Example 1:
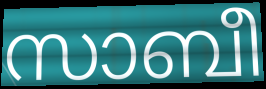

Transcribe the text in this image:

സാബീ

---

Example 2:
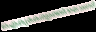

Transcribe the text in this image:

ഐക്യകേരളത്തിനുവേണ്ടി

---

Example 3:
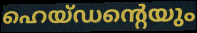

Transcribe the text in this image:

ഹെയ്ഡന്റെയും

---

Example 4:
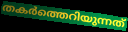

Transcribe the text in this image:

തകർത്തെറിയുന്നത്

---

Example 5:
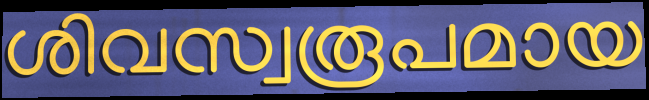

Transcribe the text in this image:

ശിവസ്വരൂപമായ